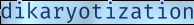
dikaryotization